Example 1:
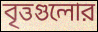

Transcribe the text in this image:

বৃত্তগুলোর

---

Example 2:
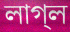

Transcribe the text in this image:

লাগ্‌ল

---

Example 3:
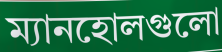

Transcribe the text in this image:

ম্যানহোলগুলো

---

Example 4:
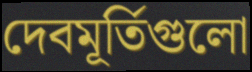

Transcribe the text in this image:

দেবমূর্তিগুলো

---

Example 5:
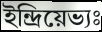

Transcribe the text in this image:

ইন্দ্রিয়েভ্যঃ